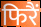
फिरैं